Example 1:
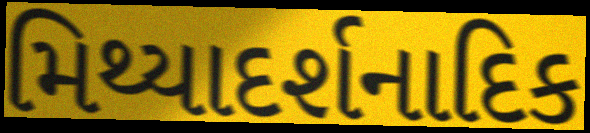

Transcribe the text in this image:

મિથ્યાદર્શનાદિક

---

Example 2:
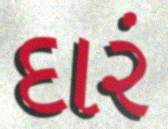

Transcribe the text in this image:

દારં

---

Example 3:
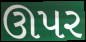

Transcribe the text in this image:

ઊપર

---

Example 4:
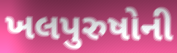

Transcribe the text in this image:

ખલપુરુષોની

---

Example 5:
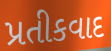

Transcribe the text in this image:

પ્રતીકવાદ